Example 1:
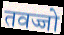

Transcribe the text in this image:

तवज्जो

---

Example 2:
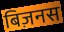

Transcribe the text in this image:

बिज़नस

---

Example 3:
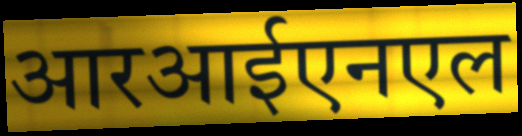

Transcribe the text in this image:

आरआईएनएल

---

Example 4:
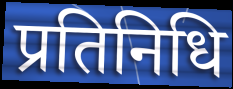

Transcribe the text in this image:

प्रतिनिधि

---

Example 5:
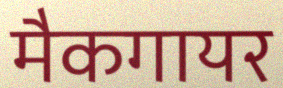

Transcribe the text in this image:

मैकगायर